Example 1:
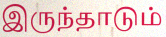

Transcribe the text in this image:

இருந்தாடும்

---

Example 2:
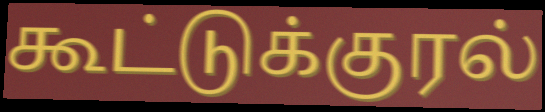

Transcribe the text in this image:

கூட்டுக்குரல்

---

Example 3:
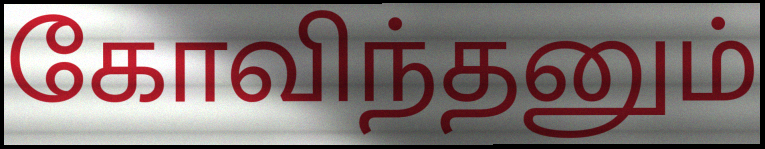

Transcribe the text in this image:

கோவிந்தனும்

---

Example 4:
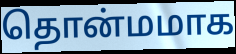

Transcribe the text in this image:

தொன்மமாக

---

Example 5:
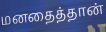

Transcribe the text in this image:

மனதைத்தான்